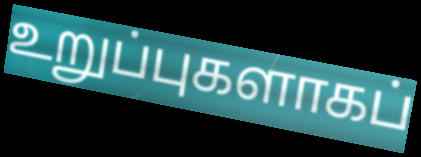
உறுப்புகளாகப்